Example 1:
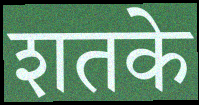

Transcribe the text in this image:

शतके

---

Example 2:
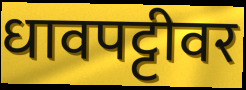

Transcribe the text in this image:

धावपट्टीवर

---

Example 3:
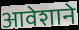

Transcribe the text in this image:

आवेशाने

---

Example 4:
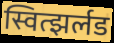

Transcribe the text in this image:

स्वित्झर्लड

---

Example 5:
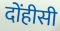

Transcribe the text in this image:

दोंहीसी